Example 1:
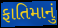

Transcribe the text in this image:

ફાતિમાનું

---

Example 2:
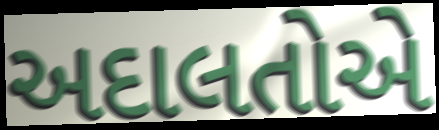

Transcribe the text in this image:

અદાલતોએ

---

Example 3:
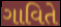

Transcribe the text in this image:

ગાવિતે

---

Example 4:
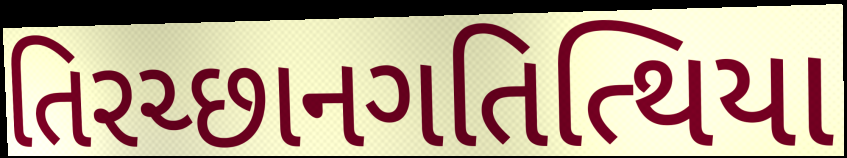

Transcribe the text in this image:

તિરચ્છાનગતિત્થિયા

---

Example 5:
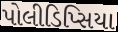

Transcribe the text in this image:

પોલીડિપ્સિયા